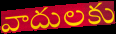
వాదులకు